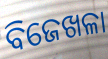
ବିଜେଖଳା